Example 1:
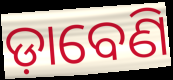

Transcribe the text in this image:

ଡ଼ାବେଣି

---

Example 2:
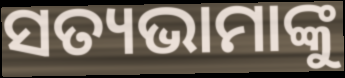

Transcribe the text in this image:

ସତ୍ୟଭାମାଙ୍କୁ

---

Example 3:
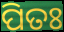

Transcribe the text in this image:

ପିତଃ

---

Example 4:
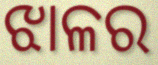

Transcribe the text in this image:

ଝାଳର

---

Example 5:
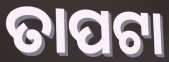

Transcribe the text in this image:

ତାପଟା